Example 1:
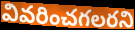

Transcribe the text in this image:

వివరించగలరని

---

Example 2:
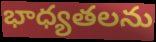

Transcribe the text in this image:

భాధ్యతలను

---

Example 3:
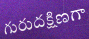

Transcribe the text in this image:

గురుదక్షిణగా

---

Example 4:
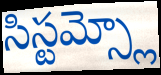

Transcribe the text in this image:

సిస్టమ్స్లో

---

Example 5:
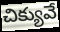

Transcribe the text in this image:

చిక్యువే